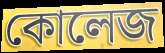
কোলেজ